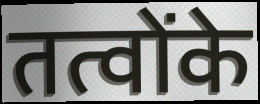
तत्वोंके